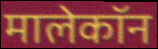
मालेकॉन